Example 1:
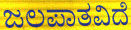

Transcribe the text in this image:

ಜಲಪಾತವಿದೆ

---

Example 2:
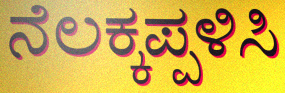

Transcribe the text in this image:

ನೆಲಕ್ಕಪ್ಪಳಿಸಿ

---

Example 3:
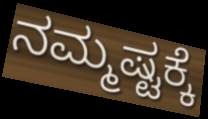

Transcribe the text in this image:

ನಮ್ಮಷ್ಟಕ್ಕೆ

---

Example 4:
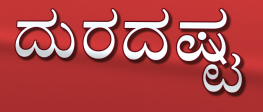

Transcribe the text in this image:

ದುರದಷ್ಟ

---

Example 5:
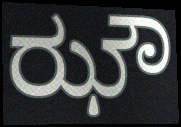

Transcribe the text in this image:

ಝೌ